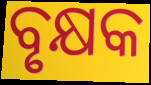
ବୃକ୍ଷକ